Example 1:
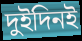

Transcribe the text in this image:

দুইদিনই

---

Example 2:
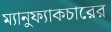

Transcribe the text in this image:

ম্যানুফ্যাকচারের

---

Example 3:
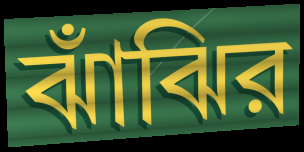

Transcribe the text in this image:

ঝাঁঝির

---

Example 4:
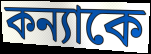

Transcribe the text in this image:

কন্যাকে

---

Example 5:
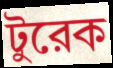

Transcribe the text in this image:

টুরেক